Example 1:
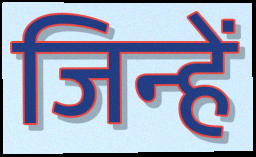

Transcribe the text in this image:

जिन्हें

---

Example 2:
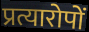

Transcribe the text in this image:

प्रत्यारोपों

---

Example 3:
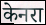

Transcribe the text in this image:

केनरा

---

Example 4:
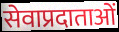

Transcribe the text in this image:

सेवाप्रदाताओं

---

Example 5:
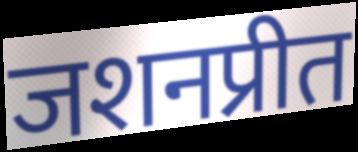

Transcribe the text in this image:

जशनप्रीत